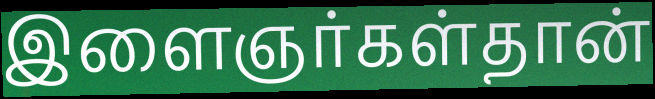
இளைஞர்கள்தான்